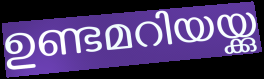
ഉണ്ടമറിയയ്ക്കു